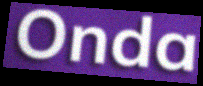
Onda